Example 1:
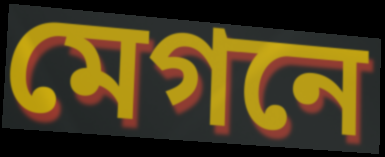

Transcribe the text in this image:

মেগনে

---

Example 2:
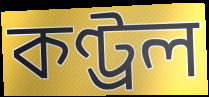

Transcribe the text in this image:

কণ্ট্ৰল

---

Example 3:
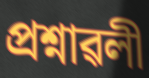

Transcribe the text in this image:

প্ৰশ্নাৱলী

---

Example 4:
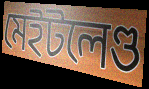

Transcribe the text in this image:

মেইটলেণ্ড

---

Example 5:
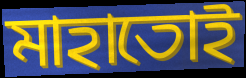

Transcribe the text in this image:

মাহাতোই